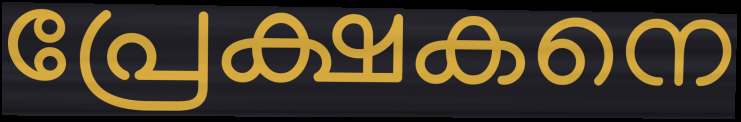
പ്രേക്ഷകനെ